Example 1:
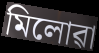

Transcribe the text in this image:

মিলোৱা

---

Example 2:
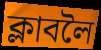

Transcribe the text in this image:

ক্লাবলৈ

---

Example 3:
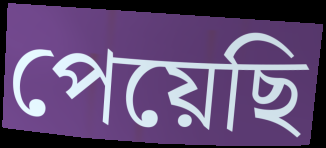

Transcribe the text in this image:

পেয়েছি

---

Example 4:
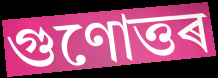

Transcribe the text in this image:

গুণোত্তৰ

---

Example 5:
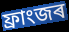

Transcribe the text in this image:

ফ্ৰাংজৰ